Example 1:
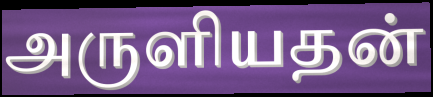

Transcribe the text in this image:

அருளியதன்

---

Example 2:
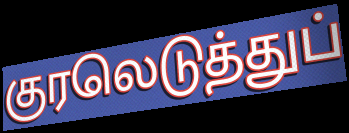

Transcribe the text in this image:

குரலெடுத்துப்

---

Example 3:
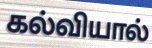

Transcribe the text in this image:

கல்வியால்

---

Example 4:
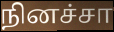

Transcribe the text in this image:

நினச்சா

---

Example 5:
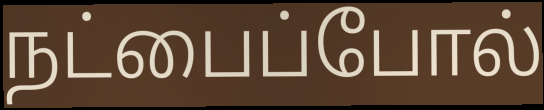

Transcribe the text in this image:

நட்பைப்போல்